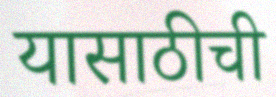
यासाठीची